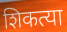
शिकत्या